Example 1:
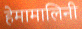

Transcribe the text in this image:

हेमामालिनी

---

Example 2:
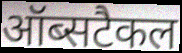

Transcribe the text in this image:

ऑब्सटैकल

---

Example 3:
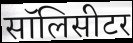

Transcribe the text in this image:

सॉलिसीटर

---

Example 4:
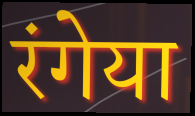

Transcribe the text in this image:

रंगेया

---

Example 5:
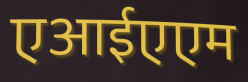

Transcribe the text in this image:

एआईएएम